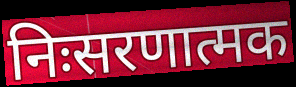
निःसरणात्मक